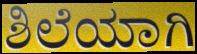
ಶಿಲೆಯಾಗಿ